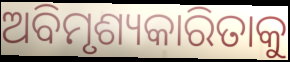
ଅବିମୃଶ୍ୟକାରିତାକୁ